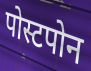
पोस्टपोन